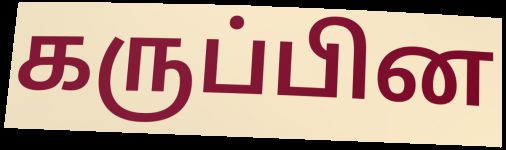
கருப்பின